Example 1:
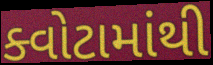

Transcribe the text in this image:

ક્વોટામાંથી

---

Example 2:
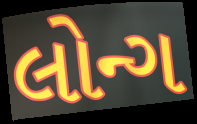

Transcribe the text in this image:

લોન્ગ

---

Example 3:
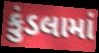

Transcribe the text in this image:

કુંડલામાં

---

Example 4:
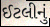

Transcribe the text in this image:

ઈટલીનું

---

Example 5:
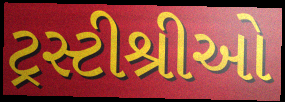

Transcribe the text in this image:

ટ્રસ્ટીશ્રીઓ